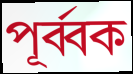
পূর্ব্বক